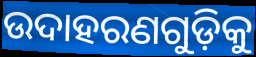
ଉଦାହରଣଗୁଡ଼ିକୁ